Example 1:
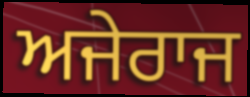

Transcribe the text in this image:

ਅਜੇਰਾਜ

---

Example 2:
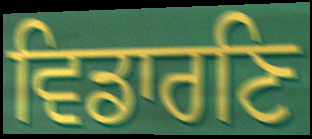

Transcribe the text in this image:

ਵਿਡਾਰਣਿ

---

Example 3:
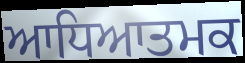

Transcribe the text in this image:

ਆਧਿਆਤਮਕ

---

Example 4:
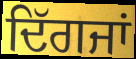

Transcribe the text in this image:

ਦਿੱਗਜਾਂ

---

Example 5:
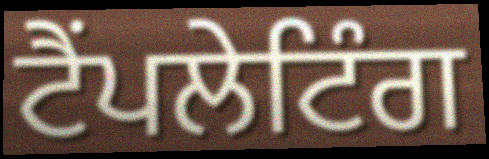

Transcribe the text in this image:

ਟੈਂਪਲੇਟਿੰਗ